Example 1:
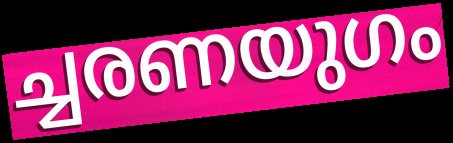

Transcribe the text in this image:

ച്ചരണയുഗം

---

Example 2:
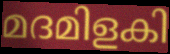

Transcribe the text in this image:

മദമിളകി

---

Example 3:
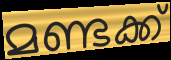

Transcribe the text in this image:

മണ്ടക്ക്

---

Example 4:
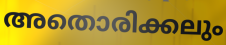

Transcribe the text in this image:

അതൊരിക്കലും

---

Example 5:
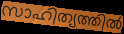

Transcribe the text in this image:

സാഹിത്യത്തിൽ